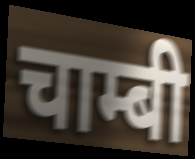
चाम्बी